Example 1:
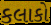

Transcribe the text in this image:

કલાકો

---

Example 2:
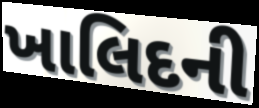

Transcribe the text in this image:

ખાલિદની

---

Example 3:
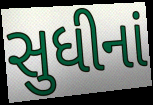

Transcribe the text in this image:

સુધીનાં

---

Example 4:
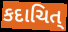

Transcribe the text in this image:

કદાચિત્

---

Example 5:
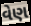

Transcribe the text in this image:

વેણ